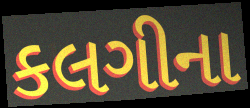
કલગીના